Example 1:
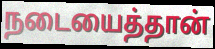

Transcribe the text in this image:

நடையைத்தான்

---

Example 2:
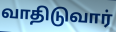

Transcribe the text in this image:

வாதிடுவார்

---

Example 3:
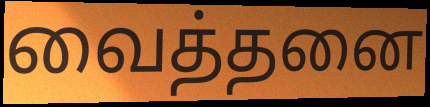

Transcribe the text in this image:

வைத்தனை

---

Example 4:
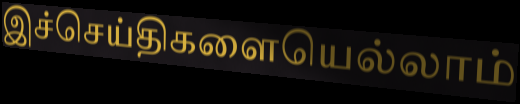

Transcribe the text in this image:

இச்செய்திகளையெல்லாம்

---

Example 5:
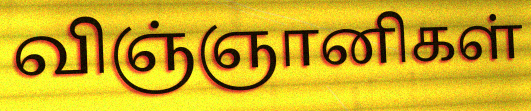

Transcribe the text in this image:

விஞ்ஞானிகள்